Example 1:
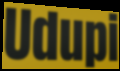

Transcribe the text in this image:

Udupi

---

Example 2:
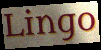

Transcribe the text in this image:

Lingo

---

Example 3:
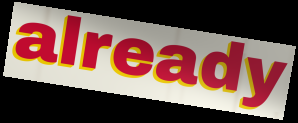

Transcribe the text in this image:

already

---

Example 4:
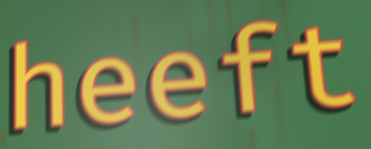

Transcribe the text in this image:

heeft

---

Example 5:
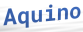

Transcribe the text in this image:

Aquino